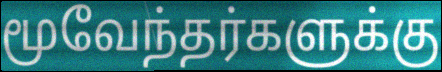
மூவேந்தர்களுக்கு